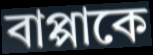
বাপ্পাকে